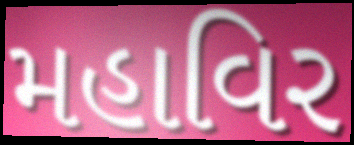
મહાવિર